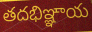
తదభిఞ్ఞాయ